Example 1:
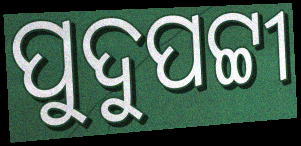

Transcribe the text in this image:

ପୁଦୁପଟ୍ଟୀ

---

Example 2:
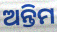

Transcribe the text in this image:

ଅନ୍ତିମ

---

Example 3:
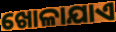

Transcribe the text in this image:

ଖୋଳାଯାଏ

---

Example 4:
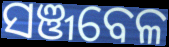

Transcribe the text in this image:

ସଞ୍ଜବେଳ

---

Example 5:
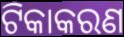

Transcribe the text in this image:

ଟିକାକରଣ